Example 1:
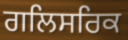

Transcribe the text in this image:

ਗਲਿਸਰਿਕ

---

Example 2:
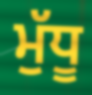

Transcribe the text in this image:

ਮੁੱਧੂ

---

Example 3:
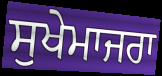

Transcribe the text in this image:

ਸੁਖੇਮਾਜਰਾ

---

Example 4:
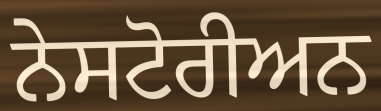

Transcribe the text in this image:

ਨੇਸਟੋਰੀਅਨ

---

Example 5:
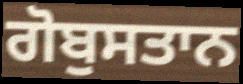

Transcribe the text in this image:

ਗੋਬੁਸਤਾਨ